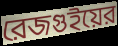
রেজগুইয়ের